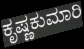
ಕೃಷ್ಣಕುಮಾರಿ